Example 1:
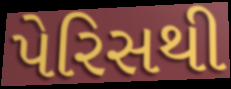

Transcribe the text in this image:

પેરિસથી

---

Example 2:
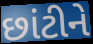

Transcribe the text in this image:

છાંટીને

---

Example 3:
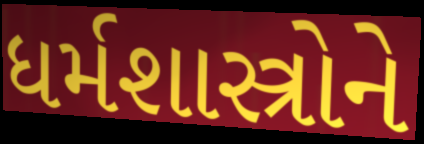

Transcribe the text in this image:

ધર્મશાસ્ત્રોને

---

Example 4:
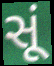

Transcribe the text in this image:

સૂં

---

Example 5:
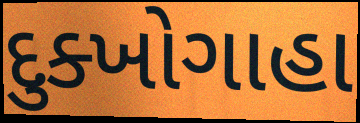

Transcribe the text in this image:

દુક્ખોગાહા